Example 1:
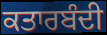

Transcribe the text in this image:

ਕਤਾਰਬੰਦੀ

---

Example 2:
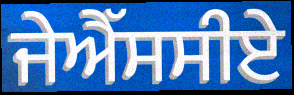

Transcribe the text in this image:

ਜੇਐੱਸਸੀਏ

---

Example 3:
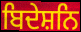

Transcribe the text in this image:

ਬਿਦੇਸ਼ਨਿ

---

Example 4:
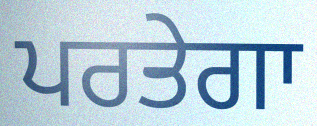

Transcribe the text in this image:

ਪਰਤੇਗਾ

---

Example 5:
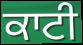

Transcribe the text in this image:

ਕਾਟੀ